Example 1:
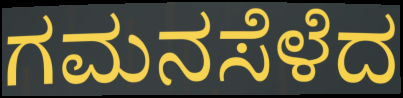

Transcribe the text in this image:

ಗಮನಸೆಳೆದ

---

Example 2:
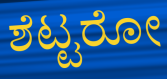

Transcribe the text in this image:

ಶೆಟ್ಟರೋ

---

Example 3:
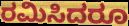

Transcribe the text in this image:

ರಮಿಸಿದರೂ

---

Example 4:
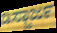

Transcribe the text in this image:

ಡಿಸ್ಚಾರ್ಜ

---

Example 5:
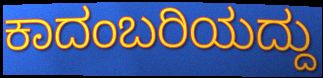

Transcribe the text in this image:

ಕಾದಂಬರಿಯದ್ದು